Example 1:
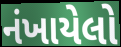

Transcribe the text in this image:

નંખાયેલો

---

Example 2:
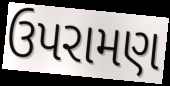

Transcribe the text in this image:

ઉપરામણ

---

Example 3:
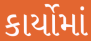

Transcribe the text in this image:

કાર્યોમાં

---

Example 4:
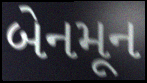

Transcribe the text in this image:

બેનમૂન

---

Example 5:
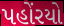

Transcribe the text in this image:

પહોંરયો